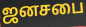
ஜனசபை